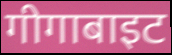
गीगाबाइट